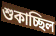
শুকাচ্ছিল